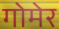
गोमेर